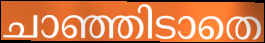
ചാഞ്ഞിടാതെ